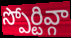
స్పోర్టివ్గా